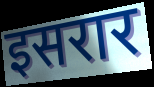
इसरार